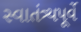
સ્વાતંત્ર્યપૂર્વે